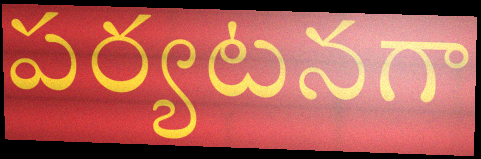
పర్యటనగా